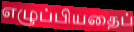
எழுப்பியதைப்